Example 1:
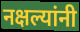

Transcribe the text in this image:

नक्षल्यांनी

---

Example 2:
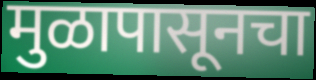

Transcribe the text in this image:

मुळापासूनचा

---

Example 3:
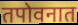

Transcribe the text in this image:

तपोवनात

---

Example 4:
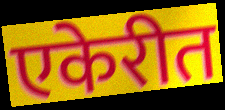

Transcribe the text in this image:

एकेरीत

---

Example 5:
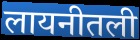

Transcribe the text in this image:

लायनीतली